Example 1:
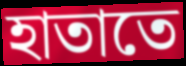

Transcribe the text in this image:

হাতাতে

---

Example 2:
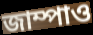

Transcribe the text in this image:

জাম্পাও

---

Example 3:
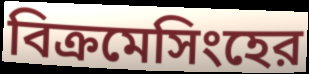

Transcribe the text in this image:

বিক্রমেসিংহের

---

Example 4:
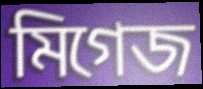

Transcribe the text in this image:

মিগেজ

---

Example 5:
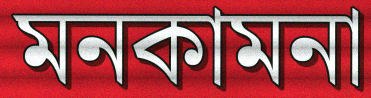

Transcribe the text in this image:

মনকামনা